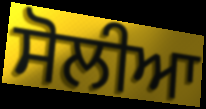
ਸੋਲੀਆ